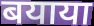
बयाया